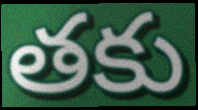
తకు